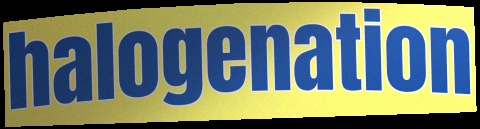
halogenation